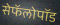
सेफॅलोपॉड